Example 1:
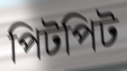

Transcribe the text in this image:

পিটপিট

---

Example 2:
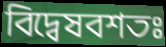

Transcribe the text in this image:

বিদ্বেষবশতঃ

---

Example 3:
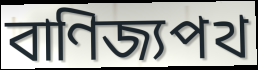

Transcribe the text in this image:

বাণিজ্যপথ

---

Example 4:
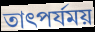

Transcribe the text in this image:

তাৎপর্যময়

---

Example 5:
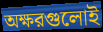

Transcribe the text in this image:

অক্ষরগুলোই